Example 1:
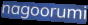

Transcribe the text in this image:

nagoorumi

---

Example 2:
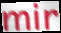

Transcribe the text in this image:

mir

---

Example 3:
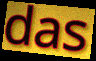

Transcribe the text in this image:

das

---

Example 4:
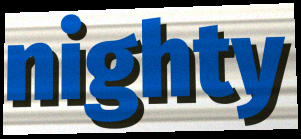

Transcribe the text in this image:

nighty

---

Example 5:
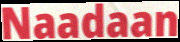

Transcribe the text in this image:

Naadaan